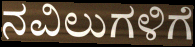
ನವಿಲುಗಳಿಗೆ